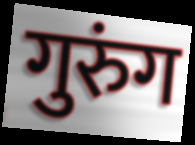
गुरुंग